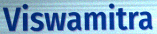
Viswamitra